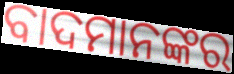
ବାଦମାନଙ୍କର